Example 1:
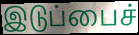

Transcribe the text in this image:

இடுப்பைச்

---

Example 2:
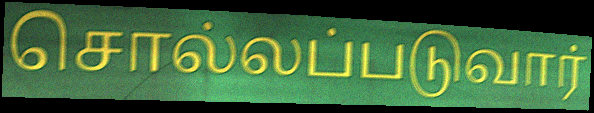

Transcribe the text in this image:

சொல்லப்படுவார்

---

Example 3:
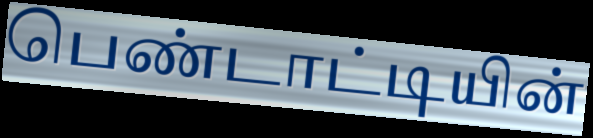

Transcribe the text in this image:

பெண்டாட்டியின்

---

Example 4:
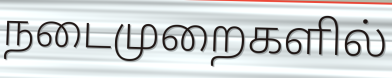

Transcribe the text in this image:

நடைமுறைகளில்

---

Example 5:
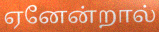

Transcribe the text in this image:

ஏனேன்றால்